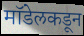
मॉडेलकडून